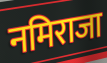
नमिराजा